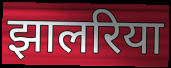
झालरिया